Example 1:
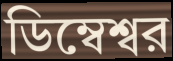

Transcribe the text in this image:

ডিম্বেশ্বর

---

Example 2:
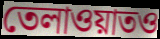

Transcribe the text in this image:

তেলাওয়াতও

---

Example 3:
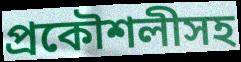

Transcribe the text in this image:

প্রকৌশলীসহ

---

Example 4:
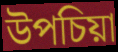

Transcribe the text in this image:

উপচিয়া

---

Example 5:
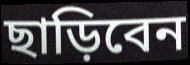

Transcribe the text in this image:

ছাড়িবেন